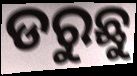
ଡରୁଛୁ